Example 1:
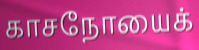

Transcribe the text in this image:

காசநோயைக்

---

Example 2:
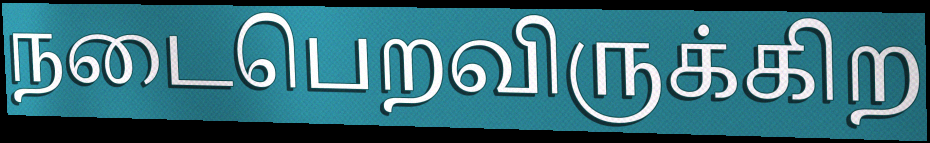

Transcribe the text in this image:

நடைபெறவிருக்கிற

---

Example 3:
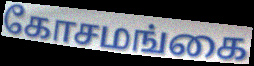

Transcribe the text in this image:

கோசமங்கை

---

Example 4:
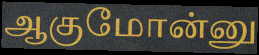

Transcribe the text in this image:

ஆகுமோன்னு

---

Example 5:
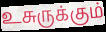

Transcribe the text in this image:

உசுருக்கும்